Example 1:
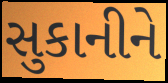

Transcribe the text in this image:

સુકાનીને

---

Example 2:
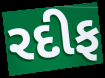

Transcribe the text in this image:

રદીફ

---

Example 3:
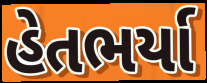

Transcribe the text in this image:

હેતભર્યા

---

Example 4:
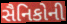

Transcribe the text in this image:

સૈનિકોની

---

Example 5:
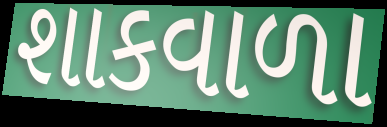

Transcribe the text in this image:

શાકવાળા